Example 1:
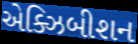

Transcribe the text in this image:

એક્ઝિબીશન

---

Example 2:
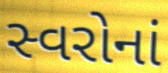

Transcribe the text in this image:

સ્વરોનાં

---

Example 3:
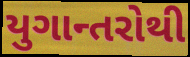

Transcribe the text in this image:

યુગાન્તરોથી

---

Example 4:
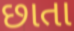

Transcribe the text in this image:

છાતા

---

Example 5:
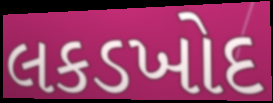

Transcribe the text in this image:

લકડખોદ